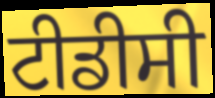
ਟੀਡੀਸੀ